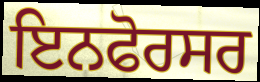
ਇਨਫੋਰਸਰ